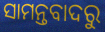
ସାମନ୍ତବାଦରୁ